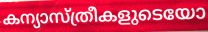
കന്യാസ്ത്രീകളുടെയോ